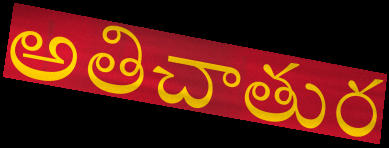
అతిచాతుర